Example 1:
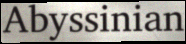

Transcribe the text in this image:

Abyssinian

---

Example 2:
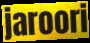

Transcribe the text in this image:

jaroori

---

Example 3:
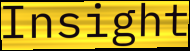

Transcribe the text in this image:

Insight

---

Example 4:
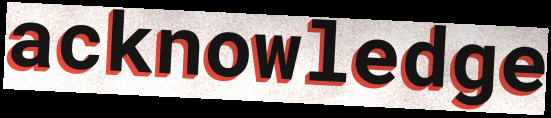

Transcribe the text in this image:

acknowledge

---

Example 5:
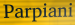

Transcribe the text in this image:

Parpiani